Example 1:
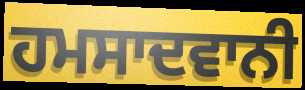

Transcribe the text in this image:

ਹਮਸਾਦਵਾਨੀ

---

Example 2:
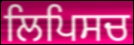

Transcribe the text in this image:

ਲਿਪਿਸਚ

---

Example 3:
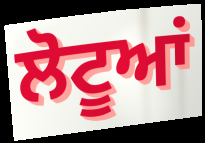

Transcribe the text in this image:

ਲੋਟੂਆਂ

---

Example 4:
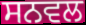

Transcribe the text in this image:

ਸਨਵਲ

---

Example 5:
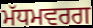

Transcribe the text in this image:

ਮੱਧਮਵਰਗ